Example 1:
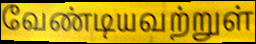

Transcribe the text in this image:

வேண்டியவற்றுள்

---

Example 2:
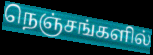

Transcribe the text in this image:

நெஞ்சங்களில்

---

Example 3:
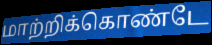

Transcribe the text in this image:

மாற்றிக்கொண்டே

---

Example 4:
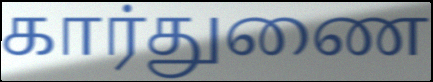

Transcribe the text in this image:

கார்துணை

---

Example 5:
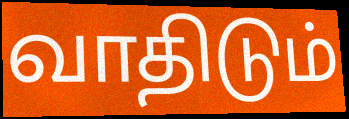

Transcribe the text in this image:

வாதிடும்